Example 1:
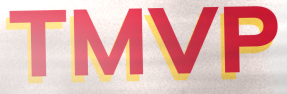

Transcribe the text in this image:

TMVP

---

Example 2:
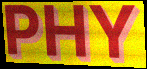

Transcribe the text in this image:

PHY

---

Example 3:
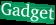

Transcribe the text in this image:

Gadget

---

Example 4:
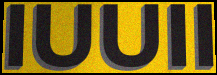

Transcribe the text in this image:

IUUII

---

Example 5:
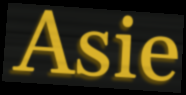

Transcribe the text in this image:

Asie